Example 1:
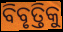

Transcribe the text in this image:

ବିବୃତ୍ତିକୁ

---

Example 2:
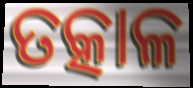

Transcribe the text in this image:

ତତ୍କାଳ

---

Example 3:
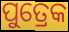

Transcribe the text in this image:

ପୁତ୍ରେକ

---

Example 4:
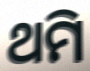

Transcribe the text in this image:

ଥମି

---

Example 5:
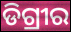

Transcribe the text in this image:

ଡିଗ୍ରୀର